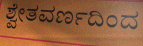
ಶ್ವೇತವರ್ಣದಿಂದ